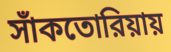
সাঁকতোরিয়ায়